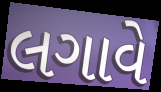
લગાવે